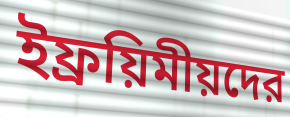
ইফ্রয়িমীয়দের